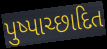
પુષ્પાચ્છાદિત